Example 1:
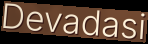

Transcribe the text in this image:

Devadasi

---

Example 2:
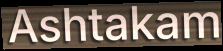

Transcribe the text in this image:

Ashtakam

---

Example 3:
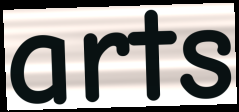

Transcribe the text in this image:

arts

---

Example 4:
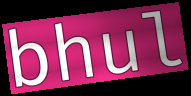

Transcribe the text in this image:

bhul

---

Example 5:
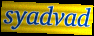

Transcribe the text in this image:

syadvad